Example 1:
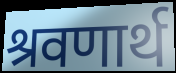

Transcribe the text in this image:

श्रवणार्थ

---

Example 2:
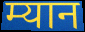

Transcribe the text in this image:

म्यान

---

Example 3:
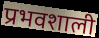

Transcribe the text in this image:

प्रभवशाली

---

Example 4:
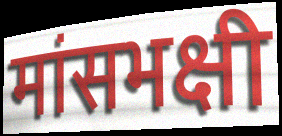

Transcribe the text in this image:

मांसभक्षी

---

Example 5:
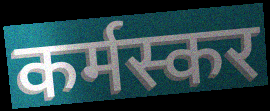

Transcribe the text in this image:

कर्मस्कर